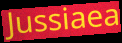
Jussiaea